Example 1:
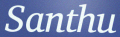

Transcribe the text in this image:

Santhu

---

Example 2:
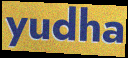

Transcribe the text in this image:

yudha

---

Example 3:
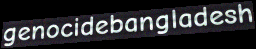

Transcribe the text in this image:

genocidebangladesh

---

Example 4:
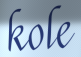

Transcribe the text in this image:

kole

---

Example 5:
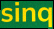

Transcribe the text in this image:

sinq